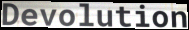
Devolution